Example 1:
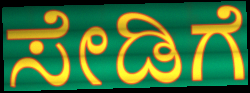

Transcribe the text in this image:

ಸೇಡಿಗೆ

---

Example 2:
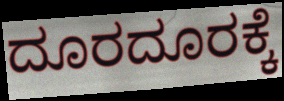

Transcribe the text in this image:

ದೂರದೂರಕ್ಕೆ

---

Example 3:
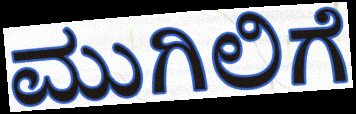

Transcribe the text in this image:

ಮುಗಿಲಿಗೆ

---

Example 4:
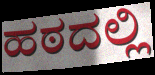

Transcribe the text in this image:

ಹಠದಲ್ಲಿ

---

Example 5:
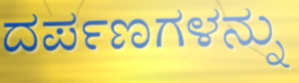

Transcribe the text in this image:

ದರ್ಪಣಗಳನ್ನು